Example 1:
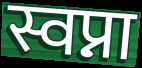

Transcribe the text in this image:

स्वप्ना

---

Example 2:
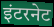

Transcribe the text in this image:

इंटरनेट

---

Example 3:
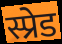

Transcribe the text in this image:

स्प्रेड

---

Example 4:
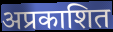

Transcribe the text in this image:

अप्रकाशित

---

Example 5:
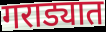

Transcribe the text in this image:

गराड्यात